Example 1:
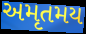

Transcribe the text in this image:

અમૃતમય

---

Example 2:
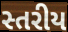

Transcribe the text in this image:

સ્તરીય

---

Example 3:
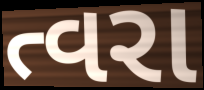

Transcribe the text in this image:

ત્વરા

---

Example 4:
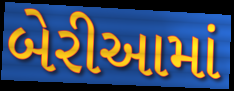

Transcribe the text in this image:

બેરીઆમાં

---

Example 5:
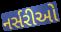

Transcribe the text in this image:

નર્સરીઓ